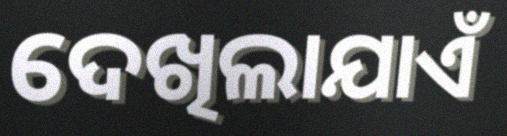
ଦେଖିଲାଯାଏଁ